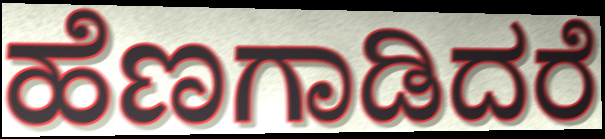
ಹೆಣಗಾಡಿದರೆ